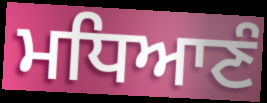
ਮਧਿਆਣੰ